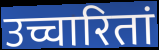
उच्चारितां